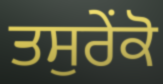
ਤਸੁਰੇਂਕੋ